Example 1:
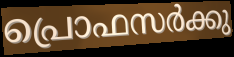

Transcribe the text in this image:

പ്രൊഫസർക്കു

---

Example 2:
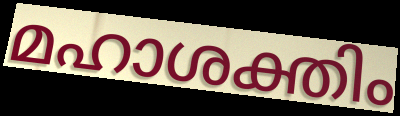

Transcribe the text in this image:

മഹാശക്തിം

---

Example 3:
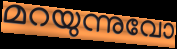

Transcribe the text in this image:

മറയുന്നുവോ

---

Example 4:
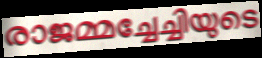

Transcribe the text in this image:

രാജമ്മച്ചേച്ചിയുടെ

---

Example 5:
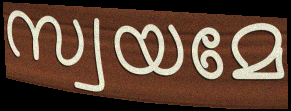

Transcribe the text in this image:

സ്വയമേ